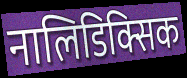
नालिडिक्सिक